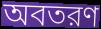
অবতরণ